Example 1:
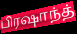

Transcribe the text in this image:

பிரஷாந்த்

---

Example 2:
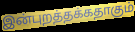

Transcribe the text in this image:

இன்புறத்தக்கதாகும்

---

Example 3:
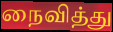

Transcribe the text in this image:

நைவித்து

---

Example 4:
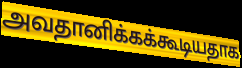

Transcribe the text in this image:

அவதானிக்கக்கூடியதாக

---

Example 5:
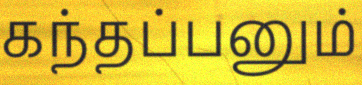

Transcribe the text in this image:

கந்தப்பனும்